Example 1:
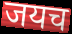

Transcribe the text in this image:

जयच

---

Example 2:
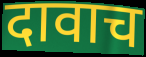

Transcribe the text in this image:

दावाच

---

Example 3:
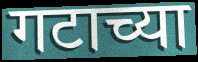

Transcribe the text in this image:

गटाच्या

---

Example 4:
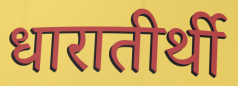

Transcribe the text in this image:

धारातीर्थी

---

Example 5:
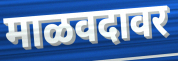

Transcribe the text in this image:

माळवदावर